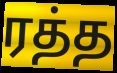
ரத்த